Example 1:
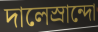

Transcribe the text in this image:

দালেস্রান্দো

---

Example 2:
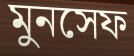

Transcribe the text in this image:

মুনসেফ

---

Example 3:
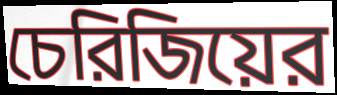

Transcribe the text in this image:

চেরিজিয়ের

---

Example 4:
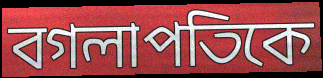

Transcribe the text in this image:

বগলাপতিকে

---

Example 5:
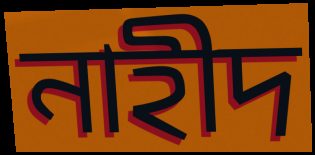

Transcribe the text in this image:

নাহীদ